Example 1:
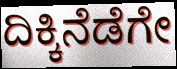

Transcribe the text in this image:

ದಿಕ್ಕಿನೆಡೆಗೇ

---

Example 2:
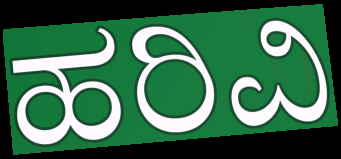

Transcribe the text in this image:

ಹರಿವಿ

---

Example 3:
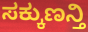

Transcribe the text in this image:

ಸಕ್ಕುಣನ್ತಿ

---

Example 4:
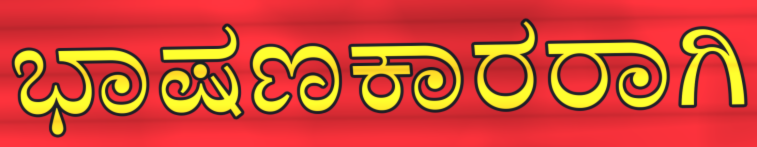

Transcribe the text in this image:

ಭಾಷಣಕಾರರಾಗಿ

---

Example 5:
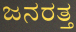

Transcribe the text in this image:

ಜನರತ್ತ